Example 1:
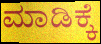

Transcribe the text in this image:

ಮಾಡಿಕ್ಕೆ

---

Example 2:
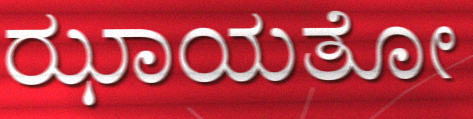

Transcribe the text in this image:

ಝಾಯತೋ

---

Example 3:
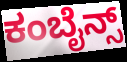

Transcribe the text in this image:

ಕಂಬೈನ್ಸ್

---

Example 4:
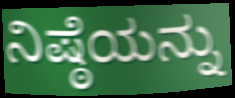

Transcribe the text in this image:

ನಿಷ್ಠೆಯನ್ನು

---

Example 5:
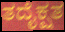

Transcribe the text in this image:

ತದೈಕ್ಷತ